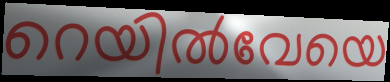
റെയിൽവേയെ